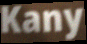
Kany